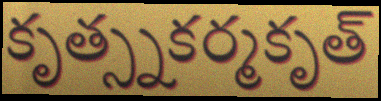
కృత్స్నకర్మకృత్